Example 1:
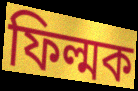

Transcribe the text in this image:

ফিল্মক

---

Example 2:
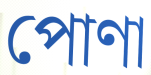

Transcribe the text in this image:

পোণা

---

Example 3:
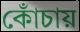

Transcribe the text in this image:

কোঁচায়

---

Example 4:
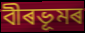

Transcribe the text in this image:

বীৰভূমৰ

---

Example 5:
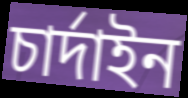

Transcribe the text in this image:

চাৰ্দাইন